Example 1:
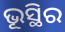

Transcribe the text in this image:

ଭୂସ୍ଥିର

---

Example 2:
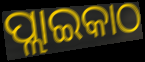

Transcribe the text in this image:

ପ୍ଲାଇକାଠ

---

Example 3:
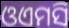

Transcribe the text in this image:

ଓଏମସି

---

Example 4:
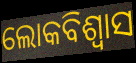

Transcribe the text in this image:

ଲୋକବିଶ୍ୱାସ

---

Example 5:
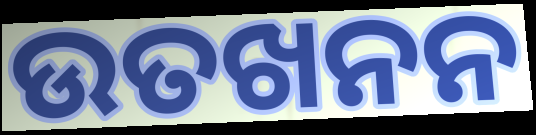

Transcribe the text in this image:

ଉତଖନନ